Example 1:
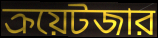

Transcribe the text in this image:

ক্রয়েটজার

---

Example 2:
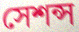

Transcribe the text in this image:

সেশন্স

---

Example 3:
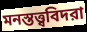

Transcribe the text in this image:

মনস্তত্ত্ববিদরা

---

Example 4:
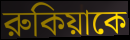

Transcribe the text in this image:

রুকিয়াকে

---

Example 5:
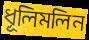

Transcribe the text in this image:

ধূলিমলিন